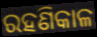
ରହଣିକାଳ